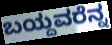
ಬಯ್ದವರೆನ್ನ